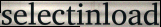
selectinload